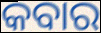
କବାର